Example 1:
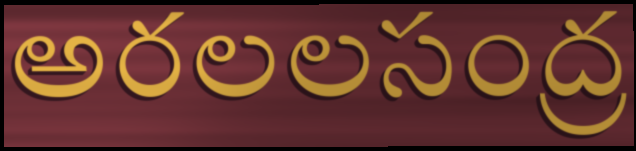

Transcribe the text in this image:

అరలలసంద్ర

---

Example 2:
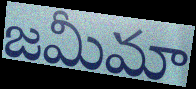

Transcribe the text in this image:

జమీమా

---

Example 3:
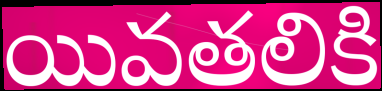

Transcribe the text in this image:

యివతలికి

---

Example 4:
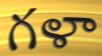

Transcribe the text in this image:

గళా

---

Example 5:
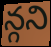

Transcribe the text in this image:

న్గని